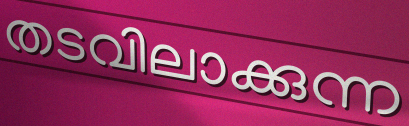
തടവിലാക്കുന്ന